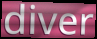
diver